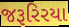
જરૂરિરયા